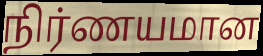
நிர்ணயமான